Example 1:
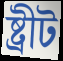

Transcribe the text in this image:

ষ্ট্ৰীট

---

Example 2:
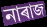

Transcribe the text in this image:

নাৰাজ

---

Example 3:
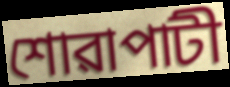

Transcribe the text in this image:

শোৱাপাটী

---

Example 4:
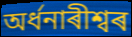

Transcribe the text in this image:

অৰ্ধনাৰীশ্বৰ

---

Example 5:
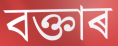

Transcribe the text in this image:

বক্তাৰ